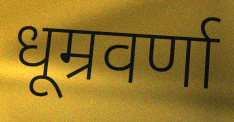
धूम्रवर्णा